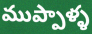
ముప్పాళ్ళ